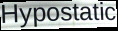
Hypostatic